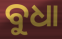
ବୁଧା